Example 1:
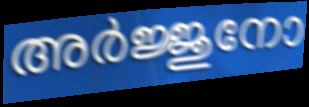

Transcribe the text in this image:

അർജ്ജുനോ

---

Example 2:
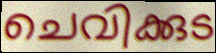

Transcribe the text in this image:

ചെവിക്കുട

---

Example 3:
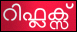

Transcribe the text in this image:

റിഫ്ലക്സ്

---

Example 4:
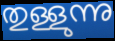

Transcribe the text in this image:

തുള്ളുന്നു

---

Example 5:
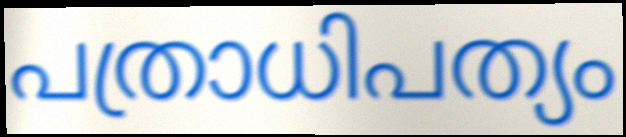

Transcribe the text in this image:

പത്രാധിപത്യം